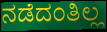
ನಡೆದಂತಿಲ್ಲ